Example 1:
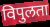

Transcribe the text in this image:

विपुलता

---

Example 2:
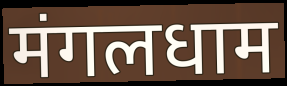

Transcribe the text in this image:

मंगलधाम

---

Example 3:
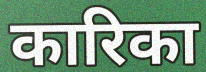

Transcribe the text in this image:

कारिका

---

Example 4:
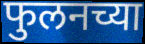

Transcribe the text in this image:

फुलनच्या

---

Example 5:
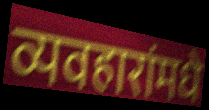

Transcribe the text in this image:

व्यवहारांमधे